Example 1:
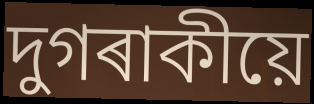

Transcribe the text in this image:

দুগৰাকীয়ে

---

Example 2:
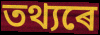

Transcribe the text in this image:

তথ্যৰে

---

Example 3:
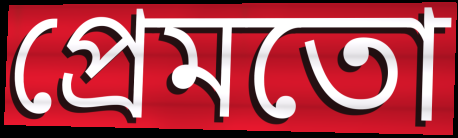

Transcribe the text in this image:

প্ৰেমতো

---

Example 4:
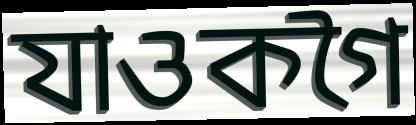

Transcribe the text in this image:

যাওকগৈ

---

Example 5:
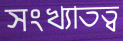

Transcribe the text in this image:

সংখ্যাতত্ব